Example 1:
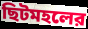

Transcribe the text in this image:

ছিটমহলের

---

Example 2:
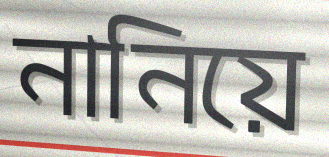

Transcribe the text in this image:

নানিয়ে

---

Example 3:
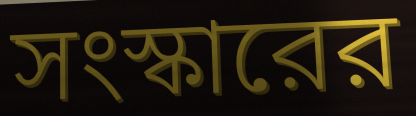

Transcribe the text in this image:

সংস্কারের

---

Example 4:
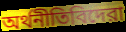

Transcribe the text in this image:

অর্থনীতিবিদেরা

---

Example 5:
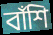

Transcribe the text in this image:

বাঁশি